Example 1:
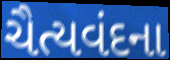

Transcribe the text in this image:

ચૈત્યવંદના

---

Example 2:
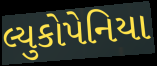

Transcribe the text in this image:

લ્યુકોપેનિયા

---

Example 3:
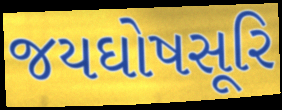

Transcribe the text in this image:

જયઘોષસૂરિ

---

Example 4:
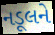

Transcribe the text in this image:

નડૂલને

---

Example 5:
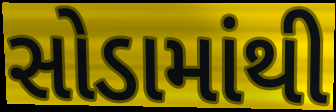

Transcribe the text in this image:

સોડામાંથી